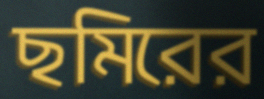
ছমিরের